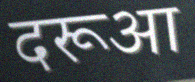
दरूआ